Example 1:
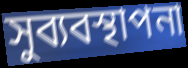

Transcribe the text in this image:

সুব্যবস্থাপনা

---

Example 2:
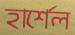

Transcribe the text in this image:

হার্শেল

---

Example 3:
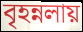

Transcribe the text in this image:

বৃহন্নলায়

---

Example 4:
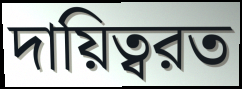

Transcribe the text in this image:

দায়িত্বরত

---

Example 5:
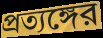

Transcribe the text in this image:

প্রত্যঙ্গের